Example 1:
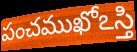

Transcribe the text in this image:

పంచముఖోఽస్తి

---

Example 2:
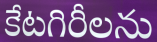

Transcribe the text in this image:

కేటగిరీలను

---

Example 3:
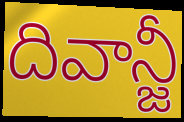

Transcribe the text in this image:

దివాన్జీ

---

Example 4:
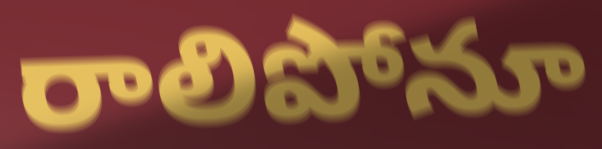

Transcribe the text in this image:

రాలిపోనూ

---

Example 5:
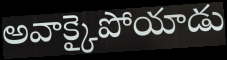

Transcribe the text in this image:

అవాక్కైపోయాడు